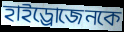
হাইড্রোজেনকে